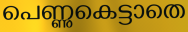
പെണ്ണുകെട്ടാതെ